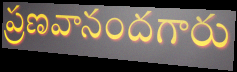
ప్రణవానందగారు